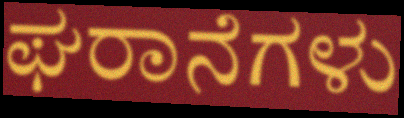
ಘರಾನೆಗಳು